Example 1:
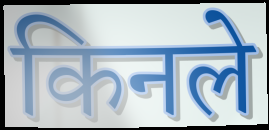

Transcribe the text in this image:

किनले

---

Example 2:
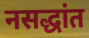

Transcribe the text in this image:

नसद्धांत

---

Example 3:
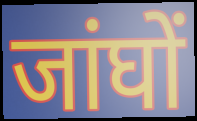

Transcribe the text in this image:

जांघों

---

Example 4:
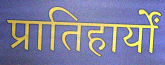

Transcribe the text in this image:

प्रातिहार्यों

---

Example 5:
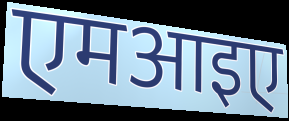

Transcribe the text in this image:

एमआइए